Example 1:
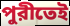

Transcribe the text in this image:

পুরীতেই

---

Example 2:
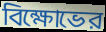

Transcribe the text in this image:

বিক্ষোভের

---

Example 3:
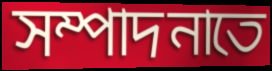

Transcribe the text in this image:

সম্পাদনাতে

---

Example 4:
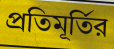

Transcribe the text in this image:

প্রতিমূর্তির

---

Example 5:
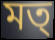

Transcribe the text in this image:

মত্